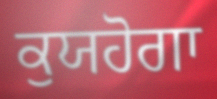
ਕੁਯਹੋਗਾ